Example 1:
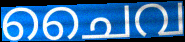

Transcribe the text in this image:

ചൈവ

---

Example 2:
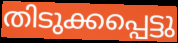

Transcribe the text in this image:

തിടുക്കപ്പെട്ടു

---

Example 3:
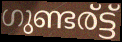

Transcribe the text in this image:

ഗുണ്ടര്ട്ട്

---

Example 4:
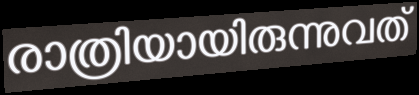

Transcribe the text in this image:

രാത്രിയായിരുന്നുവത്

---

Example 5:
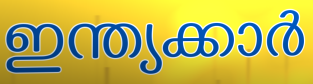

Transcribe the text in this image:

ഇന്ത്യക്കാർ